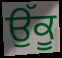
ਉੱਕੂ